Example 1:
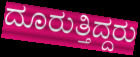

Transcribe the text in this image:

ದೂರುತ್ತಿದ್ದರು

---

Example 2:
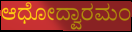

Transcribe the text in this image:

ಆಧೋದ್ವಾರಮಂ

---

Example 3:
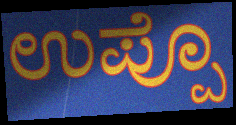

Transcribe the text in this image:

ಉಪ್ಪೊ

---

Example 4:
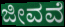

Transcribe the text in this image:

ಜೀವವೆ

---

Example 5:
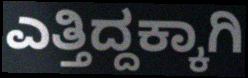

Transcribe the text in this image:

ಎತ್ತಿದ್ದಕ್ಕಾಗಿ